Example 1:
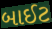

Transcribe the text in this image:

બાઈટ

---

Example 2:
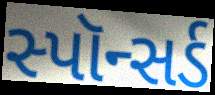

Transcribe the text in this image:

સ્પૉન્સર્ડ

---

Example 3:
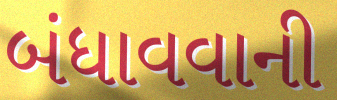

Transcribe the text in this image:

બંધાવવાની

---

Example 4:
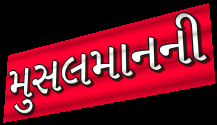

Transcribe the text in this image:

મુસલમાનની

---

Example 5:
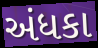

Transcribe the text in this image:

અંધકા